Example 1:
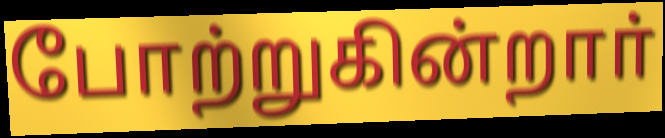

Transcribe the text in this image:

போற்றுகின்றார்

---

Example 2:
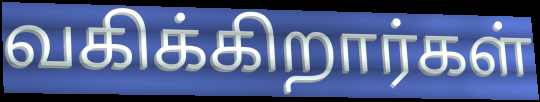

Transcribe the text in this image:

வகிக்கிறார்கள்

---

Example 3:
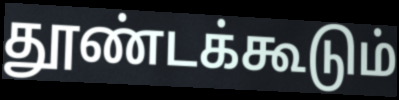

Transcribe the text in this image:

தூண்டக்கூடும்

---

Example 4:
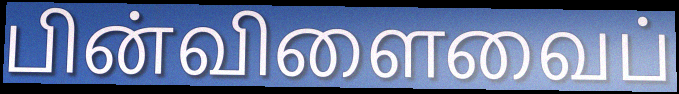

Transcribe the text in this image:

பின்விளைவைப்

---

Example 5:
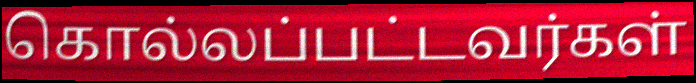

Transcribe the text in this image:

கொல்லப்பட்டவர்கள்